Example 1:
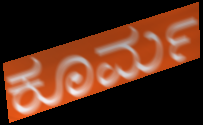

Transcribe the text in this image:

ಕೂರ್ಮ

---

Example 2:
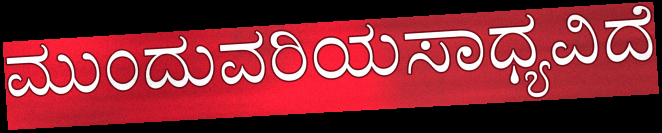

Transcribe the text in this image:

ಮುಂದುವರಿಯಸಾಧ್ಯವಿದೆ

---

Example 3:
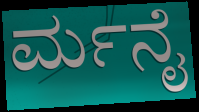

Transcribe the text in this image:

ರ್ಮನೈ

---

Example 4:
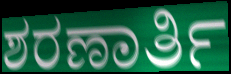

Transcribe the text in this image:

ಶರಣಾರ್ತಿ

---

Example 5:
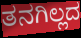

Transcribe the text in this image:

ತನಗಿಲ್ಲದ